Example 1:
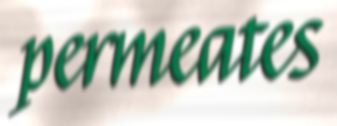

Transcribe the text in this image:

permeates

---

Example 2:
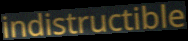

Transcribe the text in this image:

indistructible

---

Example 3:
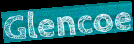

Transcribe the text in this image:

Glencoe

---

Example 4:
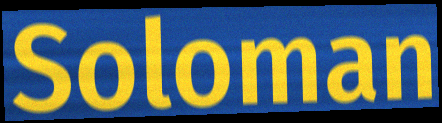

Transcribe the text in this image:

Soloman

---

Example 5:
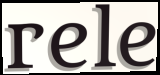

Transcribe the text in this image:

rele